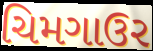
ચિમગાઉર